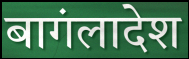
बागंलादेश